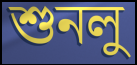
শুনলু